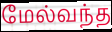
மேல்வந்த